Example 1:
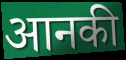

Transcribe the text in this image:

आनकी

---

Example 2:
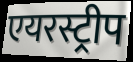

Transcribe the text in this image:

एयरस्ट्रीप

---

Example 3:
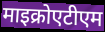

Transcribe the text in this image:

माइक्रोएटीएम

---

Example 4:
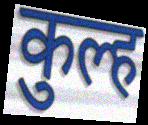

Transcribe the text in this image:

कुल्ह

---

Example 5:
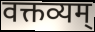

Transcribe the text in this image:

वक्तव्यम्